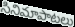
సినిమాపాటలు